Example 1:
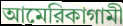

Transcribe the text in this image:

আমেরিকাগামী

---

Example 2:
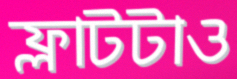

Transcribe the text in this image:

ফ্লাটটাও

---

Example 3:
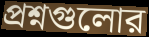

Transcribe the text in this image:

প্রশ্নগুলোর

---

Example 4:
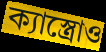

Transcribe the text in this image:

ক্যাস্ত্রোও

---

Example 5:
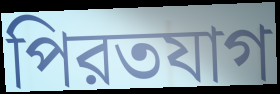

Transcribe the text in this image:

পিরতযাগ